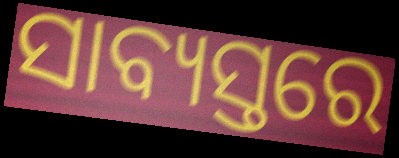
ସାବ୍ୟସ୍ତରେ